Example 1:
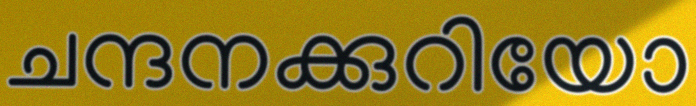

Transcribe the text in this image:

ചന്ദനക്കുറിയോ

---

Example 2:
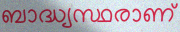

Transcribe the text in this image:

ബാദ്ധ്യസ്ഥരാണ്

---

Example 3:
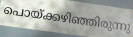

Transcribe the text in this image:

പൊയ്ക്കഴിഞ്ഞിരുന്നു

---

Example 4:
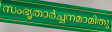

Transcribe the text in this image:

സംഭൃതാർച്ചനമാമിതു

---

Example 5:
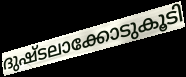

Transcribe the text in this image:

ദുഷ്ടലാക്കോടുകൂടി